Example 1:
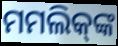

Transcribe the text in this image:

ମମଲିକ୍‌ଙ୍କ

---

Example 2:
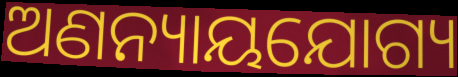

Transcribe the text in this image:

ଅଣନ୍ୟାୟଯୋଗ୍ୟ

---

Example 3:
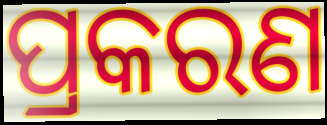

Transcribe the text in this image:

ପ୍ରକରଣ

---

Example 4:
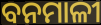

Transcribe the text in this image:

ବନମାଳୀ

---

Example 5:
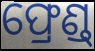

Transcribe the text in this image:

ଫ୍ରେଣ୍ଡ୍